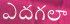
ఎదగలా